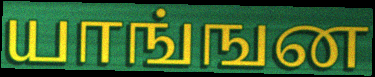
யாங்ஙன